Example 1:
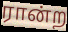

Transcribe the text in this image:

ரான்ற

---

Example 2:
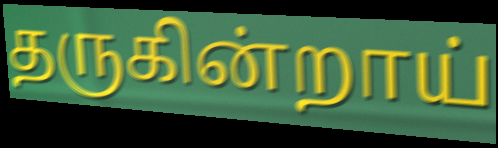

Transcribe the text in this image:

தருகின்றாய்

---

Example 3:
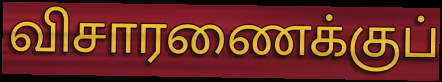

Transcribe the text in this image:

விசாரணைக்குப்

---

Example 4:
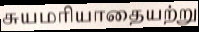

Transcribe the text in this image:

சுயமரியாதையற்று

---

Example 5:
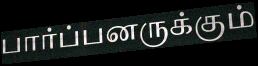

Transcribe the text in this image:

பார்ப்பனருக்கும்